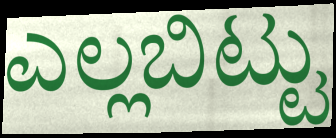
ಎಲ್ಲಬಿಟ್ಟು